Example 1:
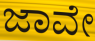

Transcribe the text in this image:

ಜಾವೇ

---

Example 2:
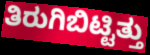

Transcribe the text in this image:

ತಿರುಗಿಬಿಟ್ಟಿತ್ತು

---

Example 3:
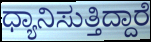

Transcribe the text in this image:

ಧ್ಯಾನಿಸುತ್ತಿದ್ದಾರೆ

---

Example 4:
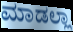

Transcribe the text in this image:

ಮಾಡಲ್ಲಾ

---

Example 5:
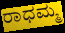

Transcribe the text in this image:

ರಾಧಮ್ಮ